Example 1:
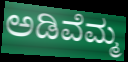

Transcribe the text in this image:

ಅಡಿವೆಮ್ಮ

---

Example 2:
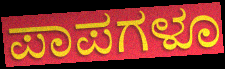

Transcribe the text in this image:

ಪಾಪಗಳೂ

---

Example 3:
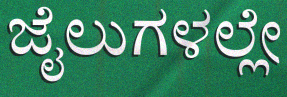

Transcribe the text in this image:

ಜೈಲುಗಳಲ್ಲೇ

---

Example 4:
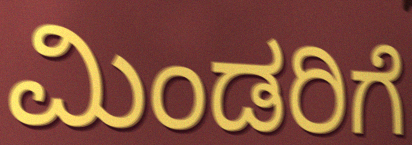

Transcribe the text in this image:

ಮಿಂಡರಿಗೆ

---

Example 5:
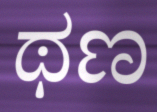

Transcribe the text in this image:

ಥಣ